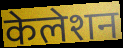
केलेशन